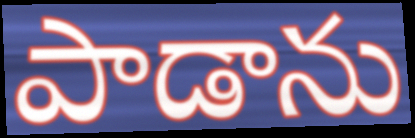
పాడాను